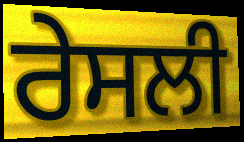
ਰੇਸਲੀ